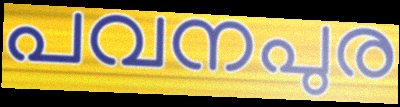
പവനപുര